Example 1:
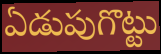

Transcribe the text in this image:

ఏడుపుగొట్టు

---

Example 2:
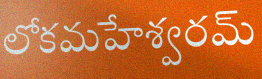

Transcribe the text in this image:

లోకమహేశ్వరమ్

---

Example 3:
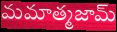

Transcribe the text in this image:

మమాత్మజామ్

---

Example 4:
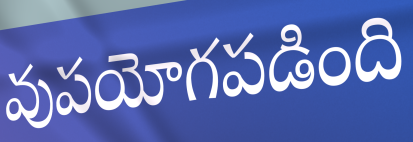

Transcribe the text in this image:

వుపయోగపడింది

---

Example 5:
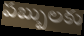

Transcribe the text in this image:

పబ్బులకు